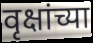
वृक्षांच्या